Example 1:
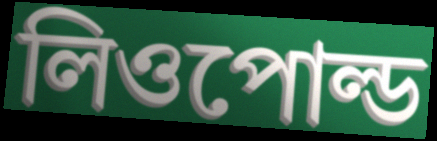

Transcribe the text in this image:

লিওপোল্ড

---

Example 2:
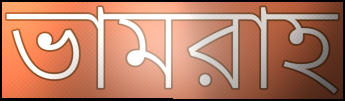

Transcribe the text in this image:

ভামরাহ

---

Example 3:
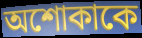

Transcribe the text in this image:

অশোকাকে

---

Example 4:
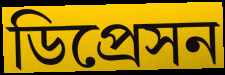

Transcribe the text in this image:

ডিপ্রেসন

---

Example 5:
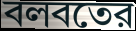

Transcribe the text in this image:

বলবতের